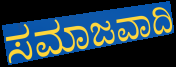
ಸಮಾಜವಾದಿ